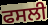
ਫਸਲੀ